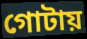
গোটায়